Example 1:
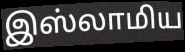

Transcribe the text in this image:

இஸ்லாமிய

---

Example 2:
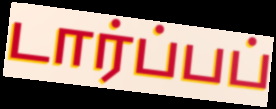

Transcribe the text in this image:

டார்ப்பப்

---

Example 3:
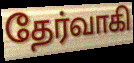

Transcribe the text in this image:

தேர்வாகி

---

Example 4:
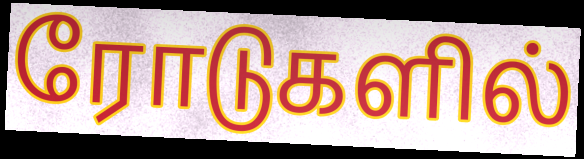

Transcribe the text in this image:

ரோடுகளில்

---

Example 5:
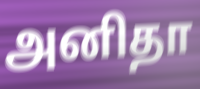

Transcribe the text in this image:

அனிதா